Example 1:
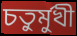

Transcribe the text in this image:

চতুর্মুখী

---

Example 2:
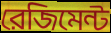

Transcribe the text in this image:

রেজিমেন্ট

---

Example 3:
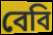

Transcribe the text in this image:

বেবি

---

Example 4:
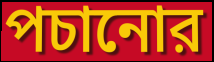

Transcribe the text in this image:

পচানোর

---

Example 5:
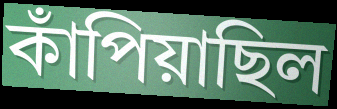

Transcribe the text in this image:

কাঁপিয়াছিল